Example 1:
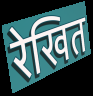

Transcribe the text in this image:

रेखित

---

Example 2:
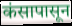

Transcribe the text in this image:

कंसापासून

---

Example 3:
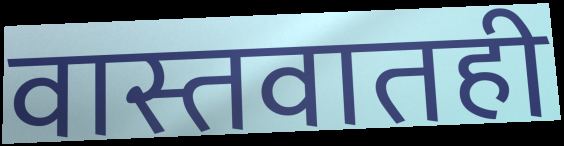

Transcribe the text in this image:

वास्तवातही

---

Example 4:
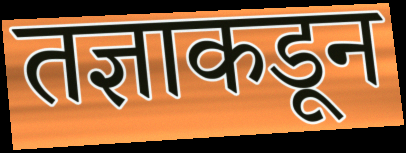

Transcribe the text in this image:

तज्ञाकडून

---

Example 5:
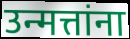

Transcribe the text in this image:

उन्मत्तांना